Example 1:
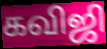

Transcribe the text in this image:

கவிஜி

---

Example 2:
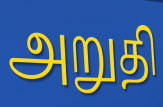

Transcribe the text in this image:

அறுதி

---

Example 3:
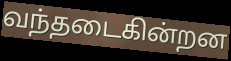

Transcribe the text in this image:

வந்தடைகின்றன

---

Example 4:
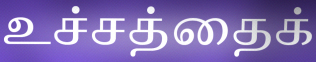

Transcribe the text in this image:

உச்சத்தைக்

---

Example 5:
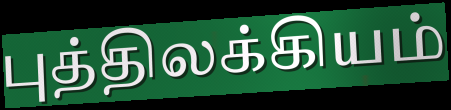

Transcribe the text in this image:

புத்திலக்கியம்